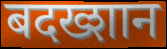
बदख्शान